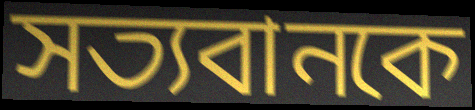
সত্যবানকে